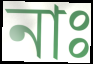
নাঃ